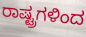
ರಾಷ್ಟ್ರಗಳಿಂದ